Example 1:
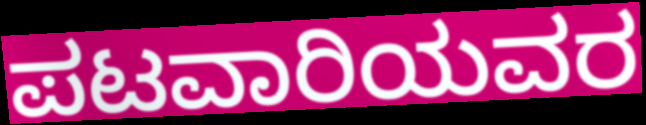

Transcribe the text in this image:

ಪಟವಾರಿಯವರ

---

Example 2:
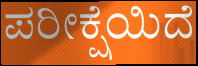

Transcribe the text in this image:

ಪರೀಕ್ಷೆಯಿದೆ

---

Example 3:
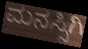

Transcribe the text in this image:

ಮನಸ್ಸಿಗಿ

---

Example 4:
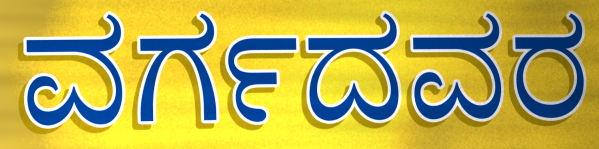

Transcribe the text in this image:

ವರ್ಗದವರ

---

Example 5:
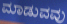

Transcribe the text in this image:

ಮಾಡುವವು